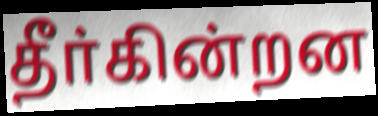
தீர்கின்றன